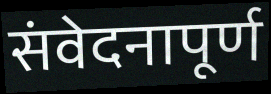
संवेदनापूर्ण